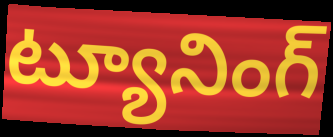
ట్యూనింగ్